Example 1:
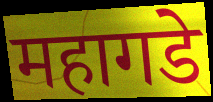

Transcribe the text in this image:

महागडे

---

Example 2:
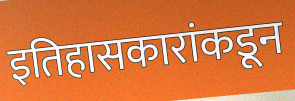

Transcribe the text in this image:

इतिहासकारांकडून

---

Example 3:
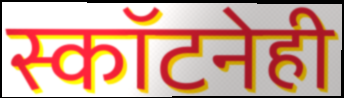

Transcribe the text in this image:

स्कॉटनेही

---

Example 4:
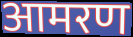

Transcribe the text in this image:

आमरण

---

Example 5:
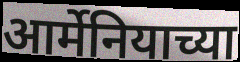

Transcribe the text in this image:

आर्मेनियाच्या